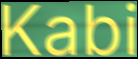
Kabi